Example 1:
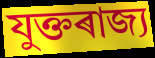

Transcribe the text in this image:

যুক্তৰাজ্য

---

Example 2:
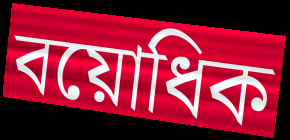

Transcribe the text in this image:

বয়োধিক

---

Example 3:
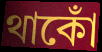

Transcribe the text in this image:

থাকোঁ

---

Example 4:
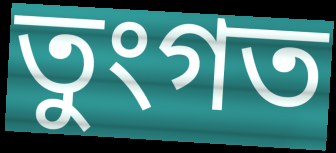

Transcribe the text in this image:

তুংগত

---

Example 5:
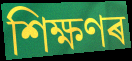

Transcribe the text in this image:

শিক্ষণৰ